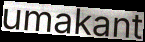
umakant